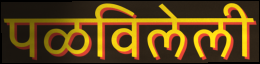
पळविलेली